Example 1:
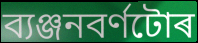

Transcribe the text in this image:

ব্যঞ্জনবৰ্ণটোৰ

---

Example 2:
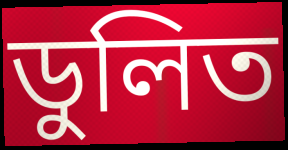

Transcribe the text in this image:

ডুলিত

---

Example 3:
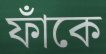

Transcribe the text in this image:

ফাঁকে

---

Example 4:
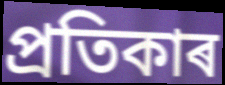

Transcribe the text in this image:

প্ৰতিকাৰ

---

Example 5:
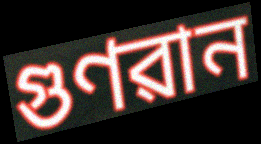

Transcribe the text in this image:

গুণৱান